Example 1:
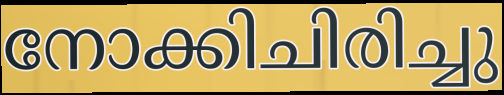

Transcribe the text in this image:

നോക്കിചിരിച്ചു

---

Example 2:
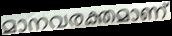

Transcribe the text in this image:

മാനവരക്തമാണ്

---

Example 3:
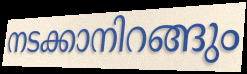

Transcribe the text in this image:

നടക്കാനിറങ്ങും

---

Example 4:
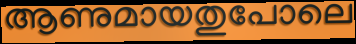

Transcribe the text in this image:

ആണുമായതുപോലെ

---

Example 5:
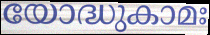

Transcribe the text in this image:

യോദ്ധുകാമഃ